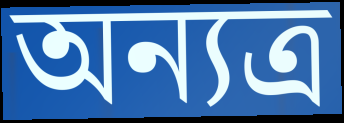
অন্যত্র